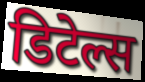
डिटेल्स